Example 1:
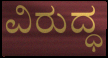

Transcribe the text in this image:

ವಿರುದ್ಧ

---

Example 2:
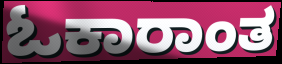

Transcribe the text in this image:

ಓಕಾರಾಂತ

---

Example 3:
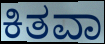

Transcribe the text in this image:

ಕಿತವಾ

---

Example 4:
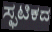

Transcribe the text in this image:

ಸ್ಫಟಿಕದ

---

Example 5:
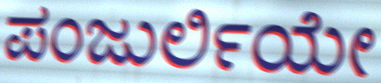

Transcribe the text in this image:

ಪಂಜುರ್ಲಿಯೇ